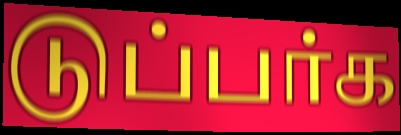
டுப்பர்க